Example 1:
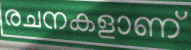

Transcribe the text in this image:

രചനകളാണ്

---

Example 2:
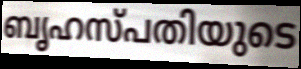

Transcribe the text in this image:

ബൃഹസ്പതിയുടെ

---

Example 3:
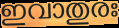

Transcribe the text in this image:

ഇവാതുരഃ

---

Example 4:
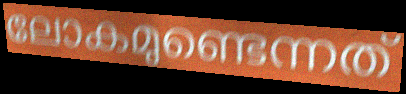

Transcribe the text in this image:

ലോകമുണ്ടെന്നത്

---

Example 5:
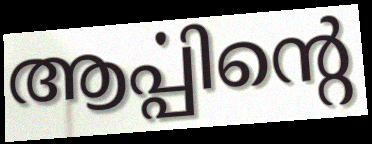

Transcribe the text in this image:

ആൎപ്പിന്റെ